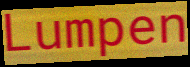
Lumpen